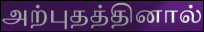
அற்புதத்தினால்